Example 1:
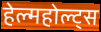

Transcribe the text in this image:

हेल्महोल्ट्स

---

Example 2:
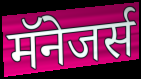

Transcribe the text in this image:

मॅनेजर्स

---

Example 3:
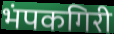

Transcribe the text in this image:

भंपकगिरी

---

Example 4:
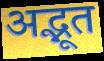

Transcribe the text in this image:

अद्भूत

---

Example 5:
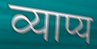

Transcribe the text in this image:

व्याप्य